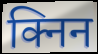
क्निन